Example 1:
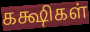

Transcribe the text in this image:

கக்ஷிகள்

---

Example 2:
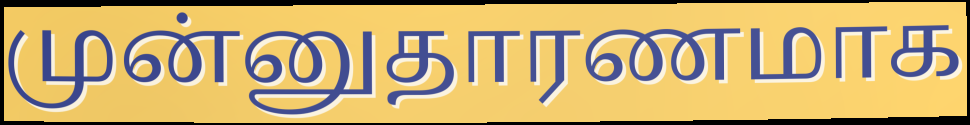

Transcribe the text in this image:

முன்னுதாரணமாக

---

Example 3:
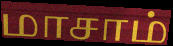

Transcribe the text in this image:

மாசாம்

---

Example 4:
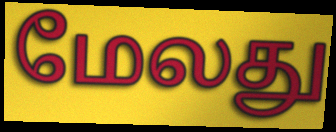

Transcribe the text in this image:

மேலது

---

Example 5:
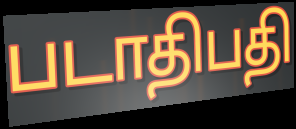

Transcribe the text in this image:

படாதிபதி